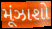
મૂંઝાશો